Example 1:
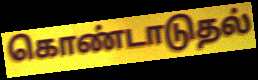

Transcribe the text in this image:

கொண்டாடுதல்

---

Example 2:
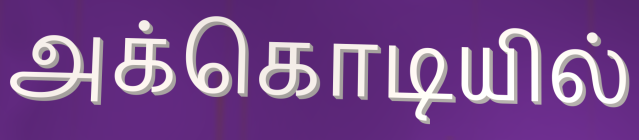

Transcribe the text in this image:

அக்கொடியில்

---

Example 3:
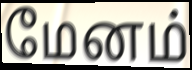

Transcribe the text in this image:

மேனம்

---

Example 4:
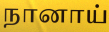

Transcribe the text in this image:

நானாய்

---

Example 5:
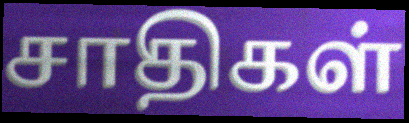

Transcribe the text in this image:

சாதிகள்